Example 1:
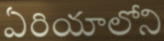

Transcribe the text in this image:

ఏరియాలోని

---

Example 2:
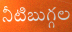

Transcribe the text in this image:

నీటిబుగ్గల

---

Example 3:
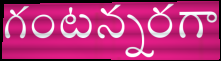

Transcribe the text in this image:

గంటన్నరగా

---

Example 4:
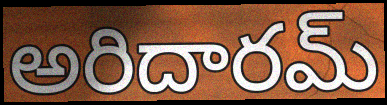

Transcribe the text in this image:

అరిదారమ్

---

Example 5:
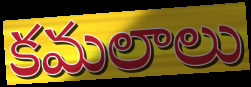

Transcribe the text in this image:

కమలాలు